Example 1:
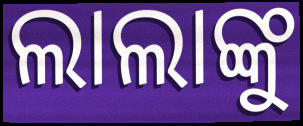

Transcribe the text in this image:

ଲାଲାଙ୍କୁ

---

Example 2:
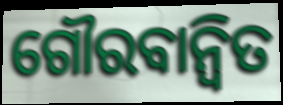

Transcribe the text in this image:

ଗୌରବାନ୍ୱିତ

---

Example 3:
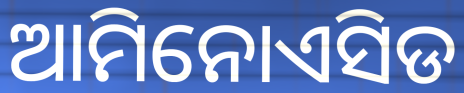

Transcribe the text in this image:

ଆମିନୋଏସିଡ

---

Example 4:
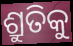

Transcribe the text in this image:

ଶ୍ରୁତିକୁ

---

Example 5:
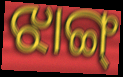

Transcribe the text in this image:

ଝାଙ୍ଗ୍